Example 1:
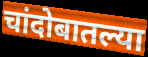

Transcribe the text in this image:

चांदोबातल्या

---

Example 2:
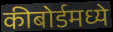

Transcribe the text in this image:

कीबोर्डमध्ये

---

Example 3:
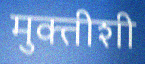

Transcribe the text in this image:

मुक्तीशी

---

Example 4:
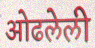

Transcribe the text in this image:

ओढलेली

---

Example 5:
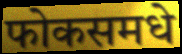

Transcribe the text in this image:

फोकसमधे